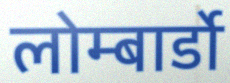
लोम्बार्डो